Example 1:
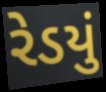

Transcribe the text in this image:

રેડયું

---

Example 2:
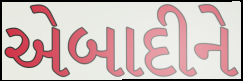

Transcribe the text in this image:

એબાદીને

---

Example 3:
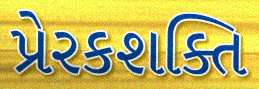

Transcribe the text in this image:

પ્રેરકશક્તિ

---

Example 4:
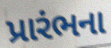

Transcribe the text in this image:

પ્રારંભના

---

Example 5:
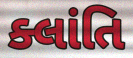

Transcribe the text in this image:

ક્લાંતિ